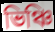
ভিঞ্চি